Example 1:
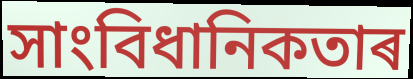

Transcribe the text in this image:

সাংবিধানিকতাৰ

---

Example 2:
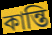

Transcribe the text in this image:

কান্তি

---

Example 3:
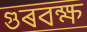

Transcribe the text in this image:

গুৰবক্ষ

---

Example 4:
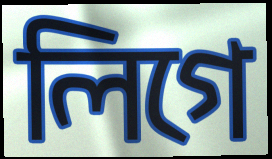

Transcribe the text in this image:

লিগে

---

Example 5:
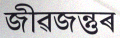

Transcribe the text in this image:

জীৱজন্তুৰ